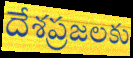
దేశప్రజలకు